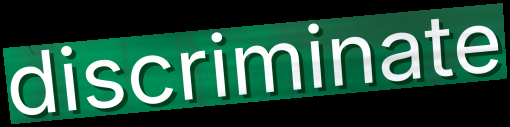
discriminate